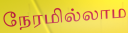
நேரமில்லாம